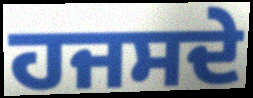
ਹਜਸਦੇ